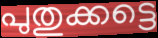
പുതുക്കട്ടെ